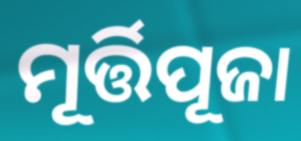
ମୂର୍ତ୍ତିପୂଜା